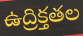
ఉద్రిక్తతల